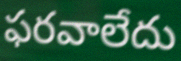
ఫరవాలేదు